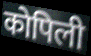
कोपिली